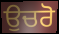
ਉਚਰੋ